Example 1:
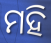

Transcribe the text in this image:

ମହି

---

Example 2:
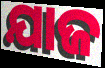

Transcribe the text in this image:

ଯାଜ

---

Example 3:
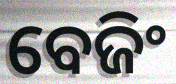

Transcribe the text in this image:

ବେଜିଂ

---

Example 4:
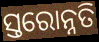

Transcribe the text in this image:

ସ୍ତରୋନ୍ନତି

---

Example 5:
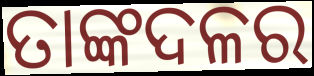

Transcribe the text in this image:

ତାଙ୍କଦଳର